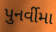
પુનર્વીમા